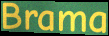
Brama